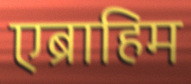
एब्राहिम